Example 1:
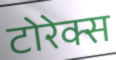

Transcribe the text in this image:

टोरेक्स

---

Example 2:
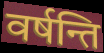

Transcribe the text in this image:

वर्षन्ति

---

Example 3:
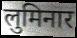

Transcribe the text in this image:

लुमिनार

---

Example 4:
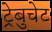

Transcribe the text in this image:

ट्रेबुचेट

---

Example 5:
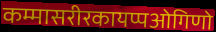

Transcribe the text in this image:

कम्मासरीरकायप्पओगिणो